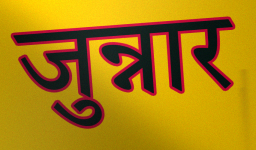
जुन्नार